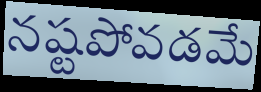
నష్టపోవడమే